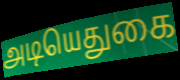
அடியெதுகை